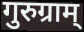
गुरुग्राम्